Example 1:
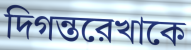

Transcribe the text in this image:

দিগন্তরেখাকে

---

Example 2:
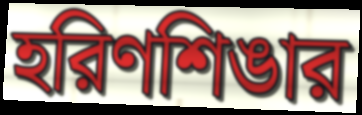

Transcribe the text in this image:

হরিণশিঙার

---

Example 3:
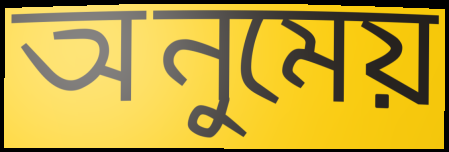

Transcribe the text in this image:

অনুমেয়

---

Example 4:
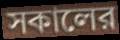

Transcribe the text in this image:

সকালের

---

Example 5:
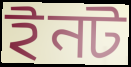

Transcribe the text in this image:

ইনট